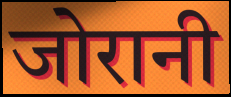
जोरानी